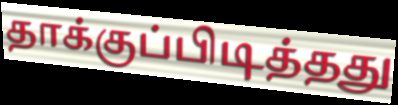
தாக்குப்பிடித்தது